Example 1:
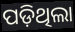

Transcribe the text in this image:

ପଡ଼ିଥିଲା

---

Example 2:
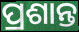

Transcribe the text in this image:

ପ୍ରଶାନ୍ତ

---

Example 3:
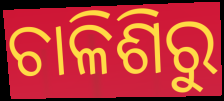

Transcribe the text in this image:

ଚାଳିଶିରୁ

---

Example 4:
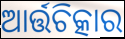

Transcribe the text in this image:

ଆର୍ତ୍ତଚିତ୍କାର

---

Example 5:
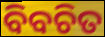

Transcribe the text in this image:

ବିବଚିତ